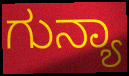
ಗುನ್ಯಾ